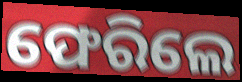
ଫେରିଲେ